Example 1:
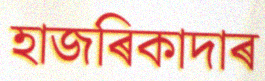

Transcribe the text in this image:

হাজৰিকাদাৰ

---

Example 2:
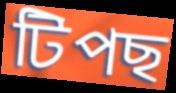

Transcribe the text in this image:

টিপছ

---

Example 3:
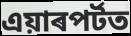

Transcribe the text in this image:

এয়াৰপৰ্টত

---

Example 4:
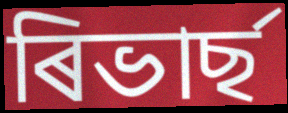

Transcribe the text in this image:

ৰিভাৰ্ছ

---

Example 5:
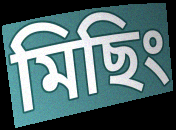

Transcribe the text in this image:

মিছিং